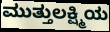
ಮುತ್ತುಲಕ್ಷ್ಮಿಯ